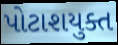
પોટાશયુક્ત